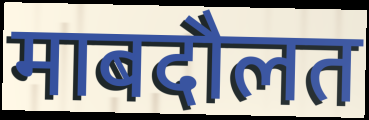
माबदौलत